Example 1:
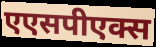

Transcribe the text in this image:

एएसपीएक्स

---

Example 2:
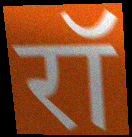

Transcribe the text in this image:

रॉ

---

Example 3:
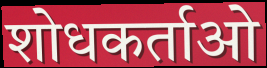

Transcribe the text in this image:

शोधकर्ताओ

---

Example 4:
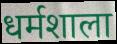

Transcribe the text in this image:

धर्मशाला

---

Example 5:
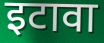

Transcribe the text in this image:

इटावा